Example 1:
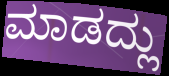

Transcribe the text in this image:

ಮಾಡದ್ಲು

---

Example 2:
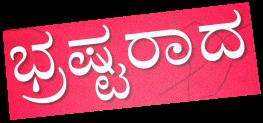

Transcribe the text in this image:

ಭ್ರಷ್ಟರಾದ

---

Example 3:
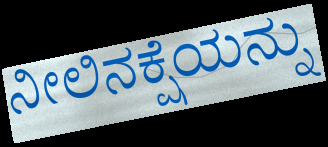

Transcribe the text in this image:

ನೀಲಿನಕ್ಷೆಯನ್ನು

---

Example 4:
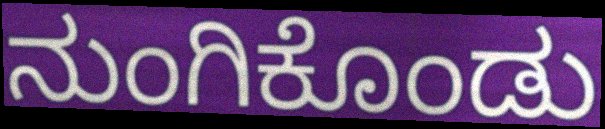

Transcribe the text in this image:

ನುಂಗಿಕೊಂಡು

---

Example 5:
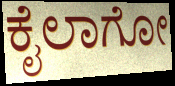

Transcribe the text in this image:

ಕೈಲಾಗೋ